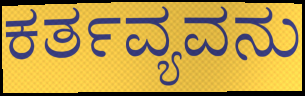
ಕರ್ತವ್ಯವನು